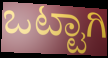
ಒಟ್ಟಾಗಿ